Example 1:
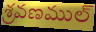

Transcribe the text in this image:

శ్రవణముల్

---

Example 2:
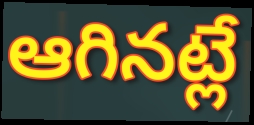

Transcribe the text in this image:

ఆగినట్లే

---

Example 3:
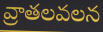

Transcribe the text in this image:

వ్రాతలవలన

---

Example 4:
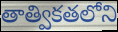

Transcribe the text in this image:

తాత్వికతలోని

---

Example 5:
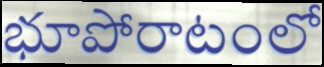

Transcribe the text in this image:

భూపోరాటంలో